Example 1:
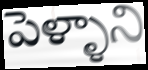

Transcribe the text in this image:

పెళ్ళాని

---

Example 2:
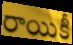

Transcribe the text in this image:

రాయికీ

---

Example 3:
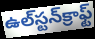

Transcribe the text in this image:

ఉల్‌స్టన్‌క్రాఫ్ట్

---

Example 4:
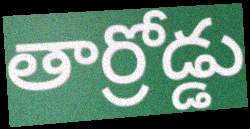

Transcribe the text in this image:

తార్రోడ్డు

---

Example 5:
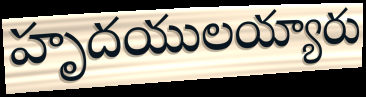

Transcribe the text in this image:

హృదయులయ్యారు